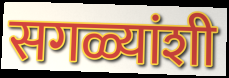
सगळ्यांशी